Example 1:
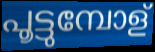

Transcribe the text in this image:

പൂട്ടുമ്പോള്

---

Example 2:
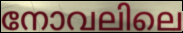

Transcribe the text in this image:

നോവലിലെ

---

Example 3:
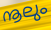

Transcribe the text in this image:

നൂലും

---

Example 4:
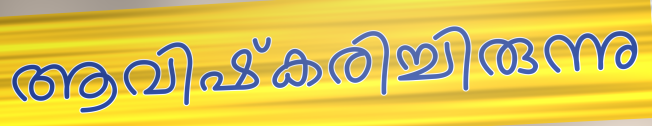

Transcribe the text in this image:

ആവിഷ്‌കരിച്ചിരുന്നു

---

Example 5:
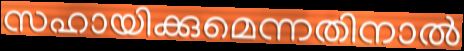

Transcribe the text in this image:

സഹായിക്കുമെന്നതിനാൽ